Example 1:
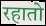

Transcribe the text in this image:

रहातो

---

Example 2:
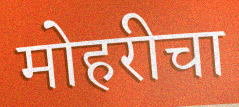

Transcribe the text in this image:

मोहरीचा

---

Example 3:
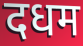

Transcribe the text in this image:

दधम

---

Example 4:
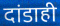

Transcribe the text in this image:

दांडाही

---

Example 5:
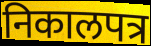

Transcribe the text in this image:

निकालपत्र